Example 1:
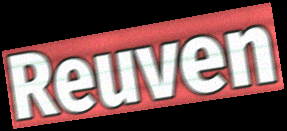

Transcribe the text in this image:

Reuven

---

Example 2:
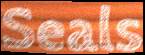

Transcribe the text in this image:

Seals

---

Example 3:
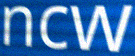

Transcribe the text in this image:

ncw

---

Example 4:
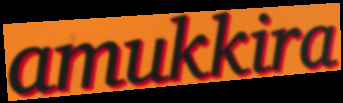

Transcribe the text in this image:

amukkira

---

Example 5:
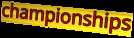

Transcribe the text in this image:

championships